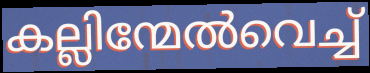
കല്ലിന്മേൽവെച്ച്